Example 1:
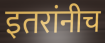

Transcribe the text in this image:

इतरांनीच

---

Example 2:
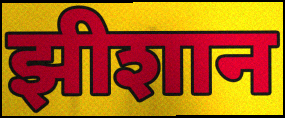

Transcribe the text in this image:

झीशान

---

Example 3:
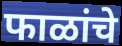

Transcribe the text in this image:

फाळांचे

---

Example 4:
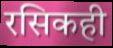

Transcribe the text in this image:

रसिकही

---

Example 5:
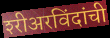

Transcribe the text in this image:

श्रीअरविंदांची